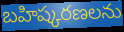
బహిష్కరణలను